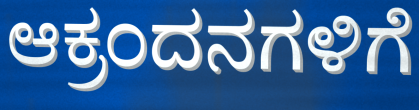
ಆಕ್ರಂದನಗಳಿಗೆ